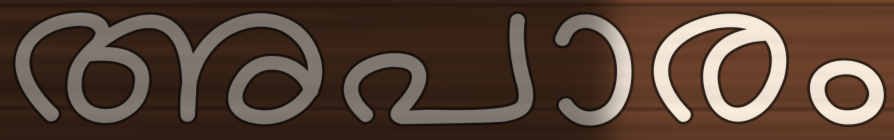
അപാരം